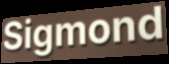
Sigmond